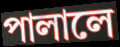
পালালে